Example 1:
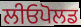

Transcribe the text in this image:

ਲੀਓਪੋਲਡ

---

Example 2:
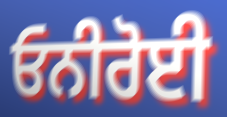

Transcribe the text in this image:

ਓਨੀਰੋਈ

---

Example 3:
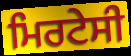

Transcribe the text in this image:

ਮਿਰਟੇਸੀ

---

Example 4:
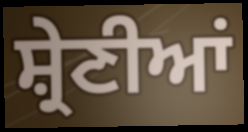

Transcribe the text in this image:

ਸ਼੍ਰੇਣੀਆਂ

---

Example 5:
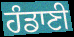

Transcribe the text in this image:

ਹੰਡਾਣੀ